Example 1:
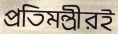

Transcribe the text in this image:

প্রতিমন্ত্রীরই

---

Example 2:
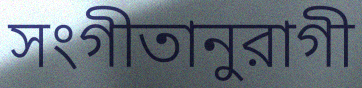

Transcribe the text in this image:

সংগীতানুরাগী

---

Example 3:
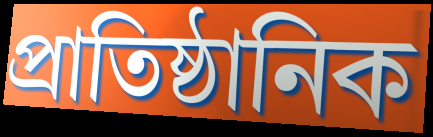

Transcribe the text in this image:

প্রাতিষ্ঠানিক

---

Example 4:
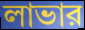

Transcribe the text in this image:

লাভার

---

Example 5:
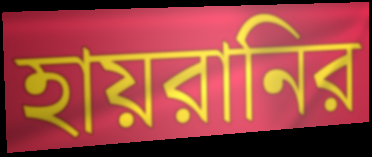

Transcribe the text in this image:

হায়রানির